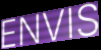
ENVIS